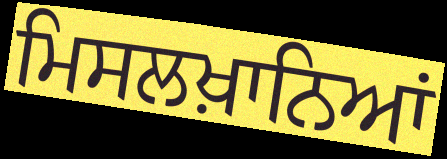
ਮਿਸਲਖ਼ਾਨਿਆਂ